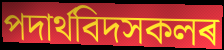
পদাৰ্থবিদসকলৰ